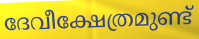
ദേവീക്ഷേത്രമുണ്ട്